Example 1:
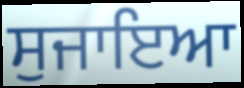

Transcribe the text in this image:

ਸੁਜਾਇਆ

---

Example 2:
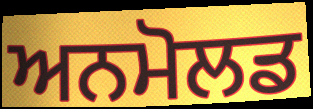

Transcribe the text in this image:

ਅਨਮੋਲਡ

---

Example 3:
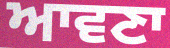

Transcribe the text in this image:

ਆਵਣਾ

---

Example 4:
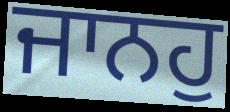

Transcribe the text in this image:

ਜਾਨਹੁ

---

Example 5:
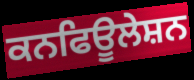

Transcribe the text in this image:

ਕਨਫਿਊਲੇਸ਼ਨ